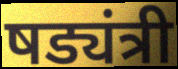
षड्यंत्री